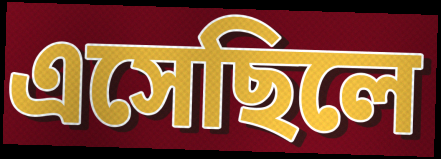
এসেছিলে